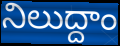
నిలుద్దాం